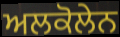
ਅਲਕੋਲੇਨ